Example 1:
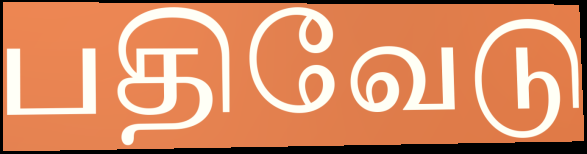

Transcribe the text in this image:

பதிவேடு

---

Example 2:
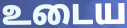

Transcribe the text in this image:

உடைய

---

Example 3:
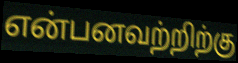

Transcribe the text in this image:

என்பனவற்றிற்கு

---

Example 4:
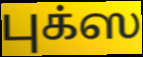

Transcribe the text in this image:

புக்ஸ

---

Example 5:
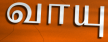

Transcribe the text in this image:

வாயு